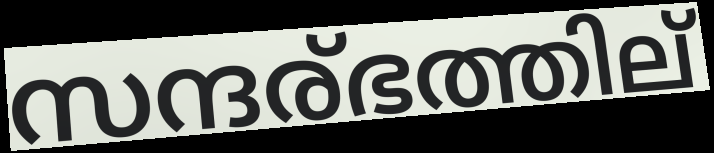
സന്ദര്ഭത്തില്